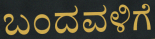
ಬಂದವಳಿಗೆ